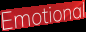
Emotional